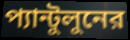
প্যান্টুলুনের